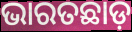
ଭାରତଛାଡ଼